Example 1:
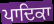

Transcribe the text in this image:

ਪਾਦਿਕਾ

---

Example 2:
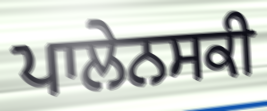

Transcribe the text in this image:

ਪਾਲੇਨਸਕੀ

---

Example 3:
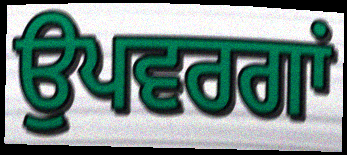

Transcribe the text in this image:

ਉਪਵਰਗਾਂ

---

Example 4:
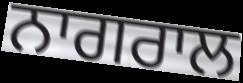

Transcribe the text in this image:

ਨਾਗਰਾਲ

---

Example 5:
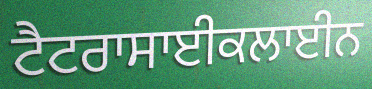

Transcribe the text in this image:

ਟੈਟਰਾਸਾਈਕਲਾਈਨ